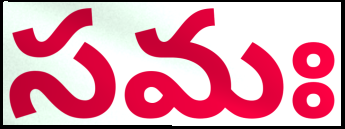
సమః